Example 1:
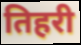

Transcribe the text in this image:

तिहरी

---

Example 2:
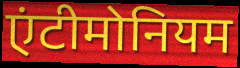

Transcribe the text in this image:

एंटीमोनियम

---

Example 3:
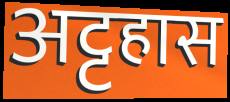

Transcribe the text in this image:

अट्टहास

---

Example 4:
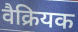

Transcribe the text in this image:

वैक्रियक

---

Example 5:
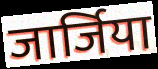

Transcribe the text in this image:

जार्जिया